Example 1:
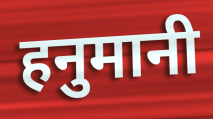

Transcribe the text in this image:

हनुमानी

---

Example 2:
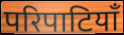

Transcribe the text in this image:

परिपाटियाँ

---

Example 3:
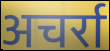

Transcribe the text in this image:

अचर्रा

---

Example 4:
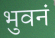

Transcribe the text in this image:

भुवनं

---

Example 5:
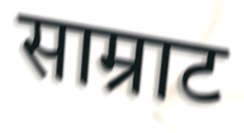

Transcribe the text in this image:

साम्राट